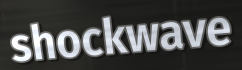
shockwave